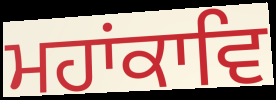
ਮਹਾਂਕਾਵਿ